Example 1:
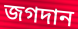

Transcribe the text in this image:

জগদান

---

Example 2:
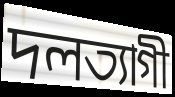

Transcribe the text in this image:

দলত্যাগী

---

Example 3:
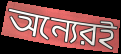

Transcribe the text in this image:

অন্যেরই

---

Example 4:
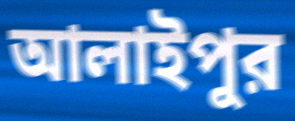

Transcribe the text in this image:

আলাইপুর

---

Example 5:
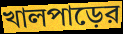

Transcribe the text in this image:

খালপাড়ের